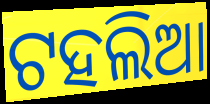
ଟହଲିଆ